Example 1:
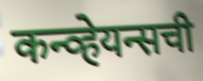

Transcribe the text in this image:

कन्व्हेयन्सची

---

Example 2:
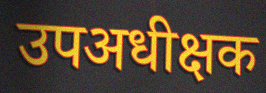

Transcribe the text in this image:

उपअधीक्षक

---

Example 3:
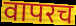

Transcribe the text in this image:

वापरच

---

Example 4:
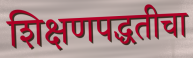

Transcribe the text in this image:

शिक्षणपद्धतीचा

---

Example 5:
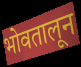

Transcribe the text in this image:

भोवतालून